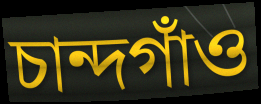
চান্দগাঁও